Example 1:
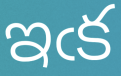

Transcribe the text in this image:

ఇఁక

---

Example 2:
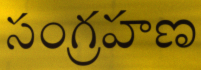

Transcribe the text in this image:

సంగ్రహణ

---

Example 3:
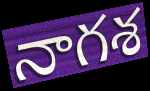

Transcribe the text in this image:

నాగశ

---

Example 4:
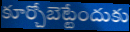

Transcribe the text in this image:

కూర్చోబెట్టేందుకు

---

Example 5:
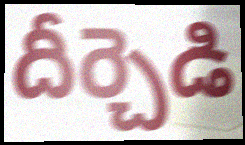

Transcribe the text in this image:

దీర్చెడి